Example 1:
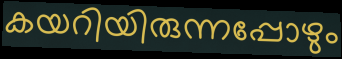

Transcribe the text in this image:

കയറിയിരുന്നപ്പോഴും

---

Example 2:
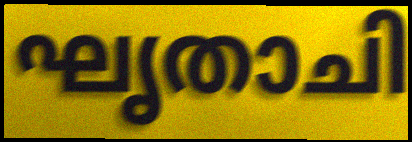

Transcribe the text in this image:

ഘൃതാചി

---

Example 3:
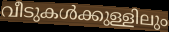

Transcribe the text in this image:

വീടുകൾക്കുള്ളിലും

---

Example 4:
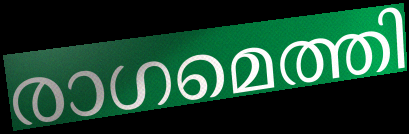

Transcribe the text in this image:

രാഗമെത്തി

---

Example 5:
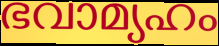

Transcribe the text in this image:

ഭവാമ്യഹം